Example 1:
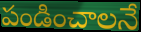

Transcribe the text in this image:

పండించాలనే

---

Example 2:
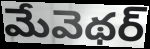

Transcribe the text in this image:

మేవెథర్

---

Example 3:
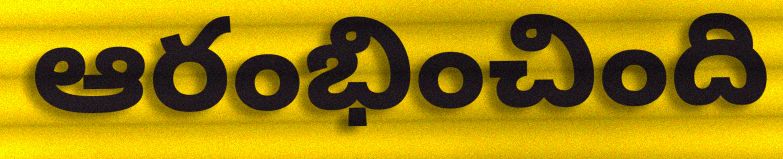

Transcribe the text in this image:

ఆరంభించింది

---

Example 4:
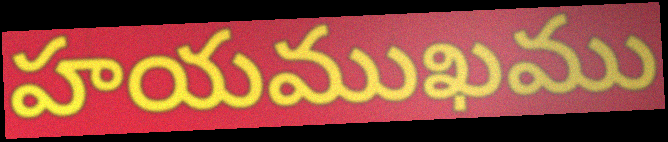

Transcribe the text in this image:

హయముఖము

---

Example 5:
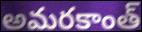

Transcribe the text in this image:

అమరకాంత్